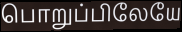
பொறுப்பிலேயே